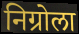
निग्रोला